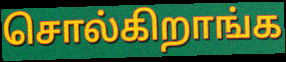
சொல்கிறாங்க